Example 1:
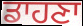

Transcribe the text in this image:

ਡਾਹਣਾ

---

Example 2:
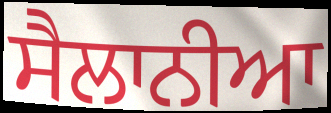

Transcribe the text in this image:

ਸੈਲਾਨੀਆ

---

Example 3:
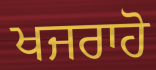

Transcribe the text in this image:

ਖਜਰਾਹੋ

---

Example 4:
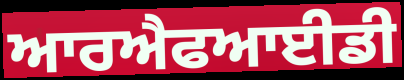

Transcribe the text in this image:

ਆਰਐਫਆਈਡੀ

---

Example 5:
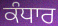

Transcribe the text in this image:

ਕੰਧਾਰ